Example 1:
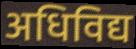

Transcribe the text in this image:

अधिविद्य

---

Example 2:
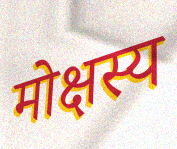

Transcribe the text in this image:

मोक्षस्य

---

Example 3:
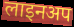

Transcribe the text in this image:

लाइनअप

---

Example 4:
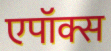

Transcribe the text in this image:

एपॉक्स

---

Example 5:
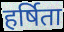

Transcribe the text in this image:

हर्षिता